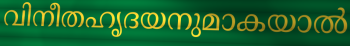
വിനീതഹൃദയനുമാകയാൽ